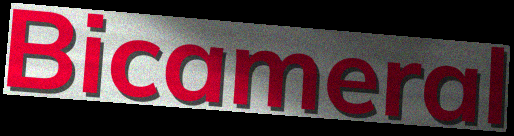
Bicameral